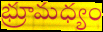
భ్రూమధ్యం